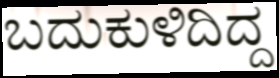
ಬದುಕುಳಿದಿದ್ದ